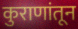
कुराणांतून